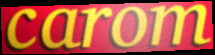
carom